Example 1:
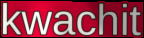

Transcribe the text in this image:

kwachit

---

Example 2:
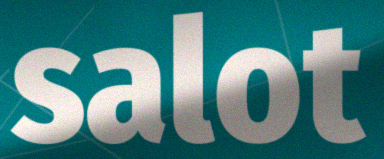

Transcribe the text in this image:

salot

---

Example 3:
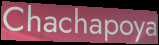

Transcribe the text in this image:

Chachapoya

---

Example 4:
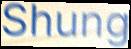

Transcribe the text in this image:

Shung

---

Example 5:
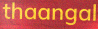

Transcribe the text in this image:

thaangal